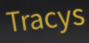
Tracys